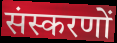
संस्करणों